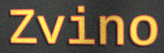
Zvino